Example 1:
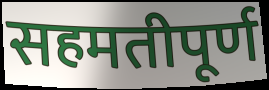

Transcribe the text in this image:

सहमतीपूर्ण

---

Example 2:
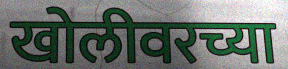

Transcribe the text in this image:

खोलीवरच्या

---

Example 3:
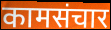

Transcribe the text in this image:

कामसंचार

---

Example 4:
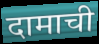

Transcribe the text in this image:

दामाची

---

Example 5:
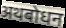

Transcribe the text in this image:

अथबोधन